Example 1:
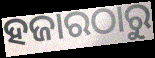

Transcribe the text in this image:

ହଜାରଠାରୁ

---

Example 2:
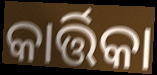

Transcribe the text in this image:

କାର୍ତ୍ତିକା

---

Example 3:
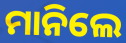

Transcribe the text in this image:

ମାନିଲେ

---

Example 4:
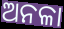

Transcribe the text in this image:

ଅନଳା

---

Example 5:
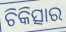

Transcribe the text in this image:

ଚିକିତ୍ସାର